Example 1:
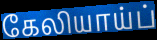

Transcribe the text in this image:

கேலியாய்ப்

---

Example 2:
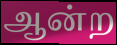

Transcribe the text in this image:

ஆன்ற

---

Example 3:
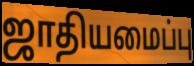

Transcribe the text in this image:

ஜாதியமைப்பு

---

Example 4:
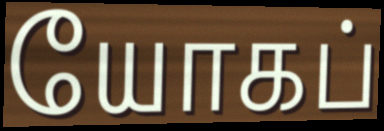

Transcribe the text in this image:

யோகப்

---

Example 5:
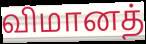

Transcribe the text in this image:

விமானத்